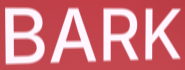
BARK